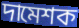
দামেশক